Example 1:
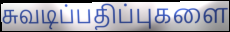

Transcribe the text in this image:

சுவடிப்பதிப்புகளை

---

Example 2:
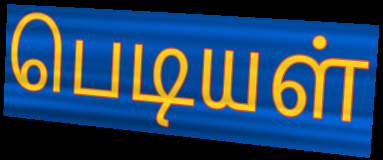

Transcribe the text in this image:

பெடியள்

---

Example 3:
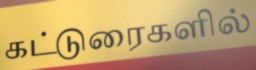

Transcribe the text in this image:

கட்டுரைகளில்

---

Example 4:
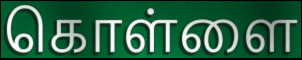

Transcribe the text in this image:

கொள்ளை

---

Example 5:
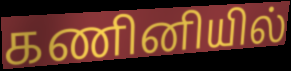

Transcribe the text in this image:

கணினியில்